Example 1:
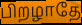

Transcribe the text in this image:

பிறழாதே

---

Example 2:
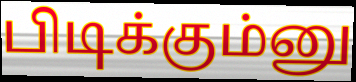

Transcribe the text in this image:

பிடிக்கும்னு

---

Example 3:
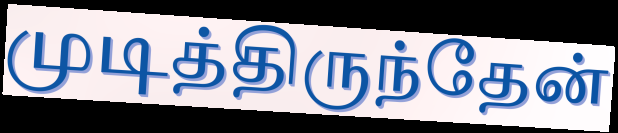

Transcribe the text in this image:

முடித்திருந்தேன்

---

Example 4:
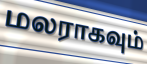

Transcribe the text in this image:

மலராகவும்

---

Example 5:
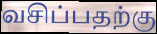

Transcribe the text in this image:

வசிப்பதற்கு